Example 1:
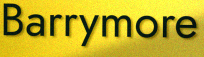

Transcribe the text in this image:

Barrymore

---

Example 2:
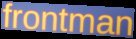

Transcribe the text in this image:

frontman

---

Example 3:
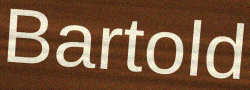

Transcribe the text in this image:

Bartold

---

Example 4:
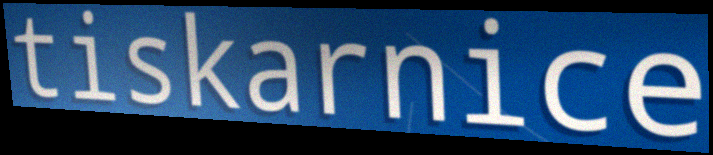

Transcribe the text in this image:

tiskarnice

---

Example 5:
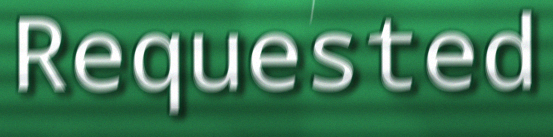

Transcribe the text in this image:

Requested